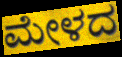
ಮೇಳದ